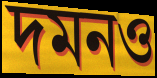
দমনও